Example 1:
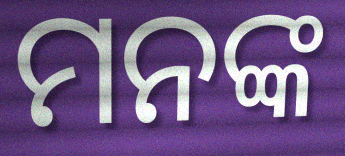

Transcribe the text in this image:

ମନଙ୍କ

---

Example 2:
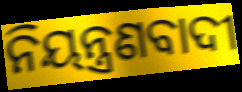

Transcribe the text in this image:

ନିୟନ୍ତ୍ରଣବାଦୀ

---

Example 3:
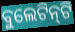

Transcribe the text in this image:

ବୁଲେଟିନ୍‍ଟି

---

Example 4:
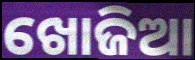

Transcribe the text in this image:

ଖୋଜିଆ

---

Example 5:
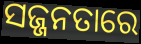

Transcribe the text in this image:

ସଜ୍ଜନତାରେ